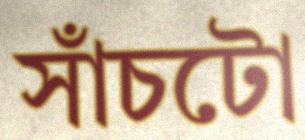
সাঁচটো